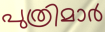
പുത്രിമാർ